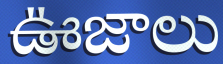
ఊజాలు